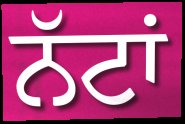
ਨੱਟਾਂ